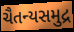
ચૈતન્યસમુદ્ર